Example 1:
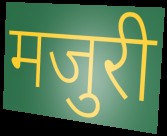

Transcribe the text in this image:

मजुरी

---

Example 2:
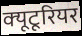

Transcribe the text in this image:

क्यूटूरियर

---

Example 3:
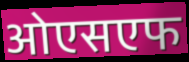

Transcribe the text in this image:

ओएसएफ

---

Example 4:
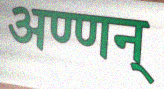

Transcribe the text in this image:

अण्णन्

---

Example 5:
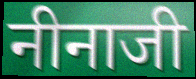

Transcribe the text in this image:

नीनाजी